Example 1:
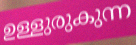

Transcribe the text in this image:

ഉള്ളുരുകുന്ന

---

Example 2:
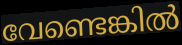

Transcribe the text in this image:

വേണ്ടെങ്കിൽ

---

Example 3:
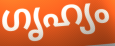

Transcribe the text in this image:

ഗൃഹ്യം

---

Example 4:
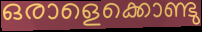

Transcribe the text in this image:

ഒരാളെക്കൊണ്ടു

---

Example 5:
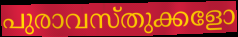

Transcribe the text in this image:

പുരാവസ്തുക്കളോ